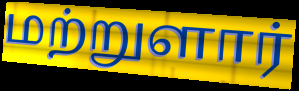
மற்றுளார்